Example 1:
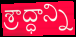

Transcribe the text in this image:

శ్రాద్ధాన్ని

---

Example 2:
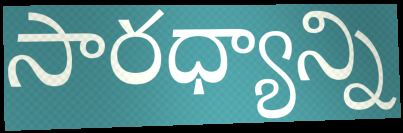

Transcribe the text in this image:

సారధ్యాన్ని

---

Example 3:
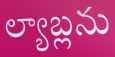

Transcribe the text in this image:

ల్యాబ్లను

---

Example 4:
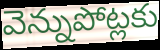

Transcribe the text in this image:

వెన్నుపోట్లకు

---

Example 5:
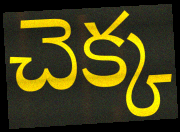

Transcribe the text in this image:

చెక్క